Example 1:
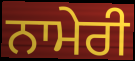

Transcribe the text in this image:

ਨਾਮੇਰੀ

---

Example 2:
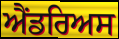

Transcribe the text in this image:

ਐਂਡਰਿਅਸ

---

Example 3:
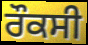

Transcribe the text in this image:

ਰੌਕਸੀ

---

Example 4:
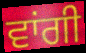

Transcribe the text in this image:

ਵਾਂਗੀ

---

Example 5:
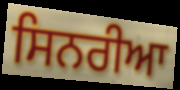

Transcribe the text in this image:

ਸਿਨਰੀਆ